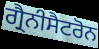
ਗ੍ਰੈਨੀਸੈਟਰੋਨ